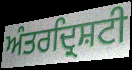
ਅੰਤਰਦ੍ਰਿਸ਼ਟੀ